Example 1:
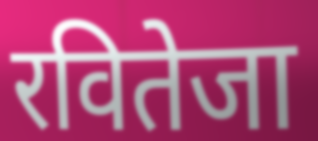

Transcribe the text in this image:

रवितेजा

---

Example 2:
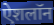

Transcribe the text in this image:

ऐशलॉन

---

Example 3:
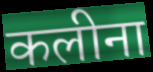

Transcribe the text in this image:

कलीना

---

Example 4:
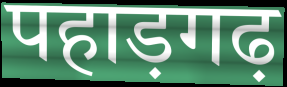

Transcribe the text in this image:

पहाड़गढ़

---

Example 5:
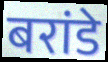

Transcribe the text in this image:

बरांडे